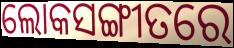
ଲୋକସଙ୍ଗୀତରେ